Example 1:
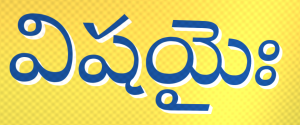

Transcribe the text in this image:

విషయైః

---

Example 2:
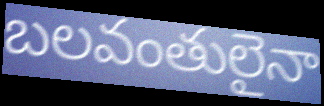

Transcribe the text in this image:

బలవంతులైనా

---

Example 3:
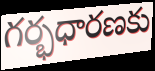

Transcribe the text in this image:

గర్భధారణకు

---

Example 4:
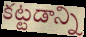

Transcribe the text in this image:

కట్టడాన్ని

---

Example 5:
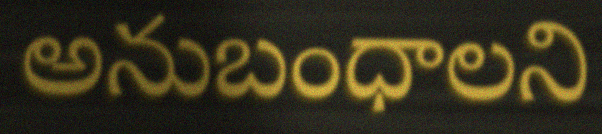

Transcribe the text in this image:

అనుబంధాలని